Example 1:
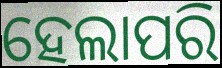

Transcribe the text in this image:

ହେଲାପରି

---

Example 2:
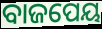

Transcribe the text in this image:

ବାଜପେୟ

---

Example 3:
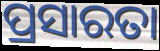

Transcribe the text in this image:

ପ୍ରସାରତା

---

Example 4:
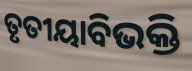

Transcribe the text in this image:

ତୃତୀୟାବିଭକ୍ତି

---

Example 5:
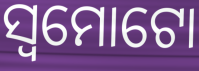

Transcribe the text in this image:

ସ୍ୱମୋଟୋ